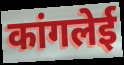
कांगलेई